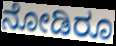
ನೋಡಿರೂ